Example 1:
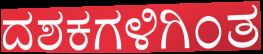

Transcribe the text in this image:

ದಶಕಗಳಿಗಿಂತ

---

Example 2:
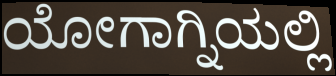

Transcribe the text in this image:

ಯೋಗಾಗ್ನಿಯಲ್ಲಿ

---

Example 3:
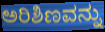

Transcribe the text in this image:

ಅರಿಶಿಣವನ್ನು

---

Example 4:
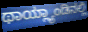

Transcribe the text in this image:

ಥಾಯ್ಲ್ಯಾಂಡಿನಲ್ಲಿ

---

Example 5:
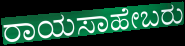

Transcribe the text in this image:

ರಾಯಸಾಹೇಬರು